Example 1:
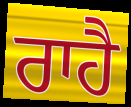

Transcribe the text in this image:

ਰਾਹੈ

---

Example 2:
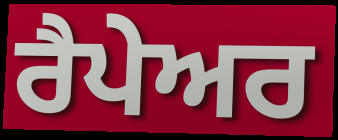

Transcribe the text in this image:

ਰੈਪੇਅਰ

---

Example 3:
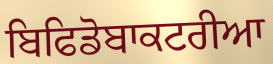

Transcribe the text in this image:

ਬਿਫਿਡੋਬਾਕਟਰੀਆ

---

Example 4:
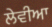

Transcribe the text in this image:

ਲੇਵੀਆ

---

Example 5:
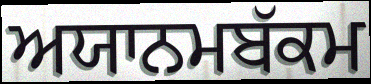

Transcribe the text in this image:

ਅਯਾਨਮਬੱਕਮ